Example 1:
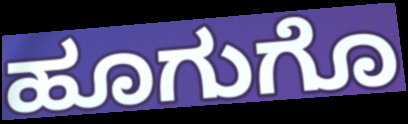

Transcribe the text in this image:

ಹೂಗುಗೊ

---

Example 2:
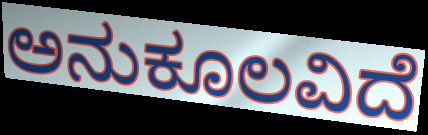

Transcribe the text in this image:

ಅನುಕೂಲವಿದೆ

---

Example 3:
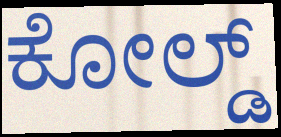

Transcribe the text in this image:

ಕೋಲ್ಡ್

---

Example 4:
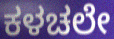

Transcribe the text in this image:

ಕಳಚಲೇ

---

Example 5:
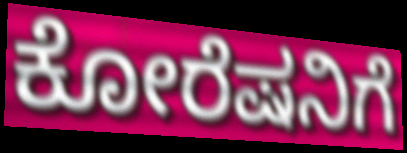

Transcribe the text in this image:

ಕೋರೆಷನಿಗೆ